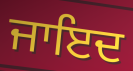
ਜਾਇਦ